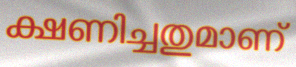
ക്ഷണിച്ചതുമാണ്